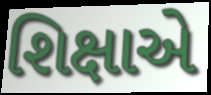
શિક્ષાએ